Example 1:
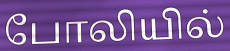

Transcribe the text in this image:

போலியில்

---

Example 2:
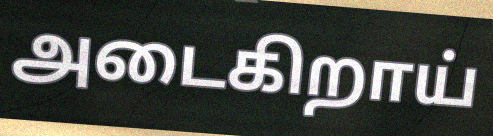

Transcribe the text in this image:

அடைகிறாய்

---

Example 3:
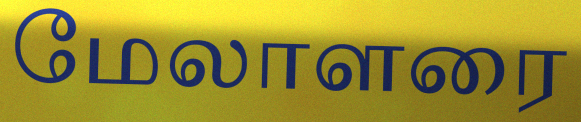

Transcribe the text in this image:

மேலாளரை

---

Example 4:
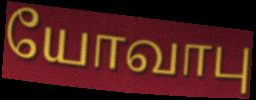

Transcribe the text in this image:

யோவாபு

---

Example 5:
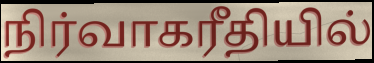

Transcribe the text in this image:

நிர்வாகரீதியில்